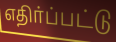
எதிர்ப்பட்டு